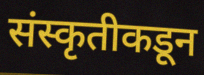
संस्कृतीकडून